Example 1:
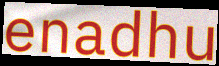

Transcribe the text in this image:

enadhu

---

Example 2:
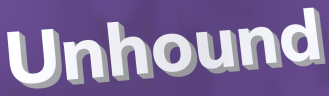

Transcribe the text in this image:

Unhound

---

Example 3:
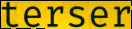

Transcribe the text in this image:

terser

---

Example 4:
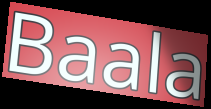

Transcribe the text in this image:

Baala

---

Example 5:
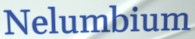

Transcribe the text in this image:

Nelumbium